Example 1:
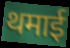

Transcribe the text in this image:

थमाई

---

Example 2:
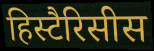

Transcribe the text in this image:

हिस्टैरिसीस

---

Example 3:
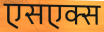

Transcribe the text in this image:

एसएक्स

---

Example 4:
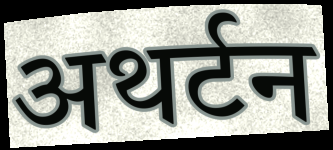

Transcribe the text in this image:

अथर्टन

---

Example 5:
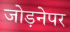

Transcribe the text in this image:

जोड़नेपर